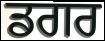
ਡਗਰ